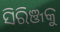
ସିରିଞ୍ଜକୁ